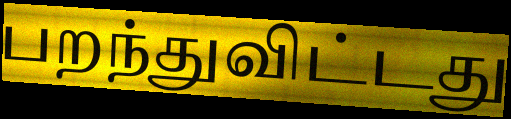
பறந்துவிட்டது